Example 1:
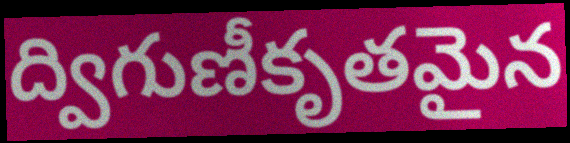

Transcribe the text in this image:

ద్విగుణీకృతమైన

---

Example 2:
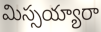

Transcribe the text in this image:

మిస్సయ్యారా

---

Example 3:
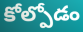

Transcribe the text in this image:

కోల్పోడం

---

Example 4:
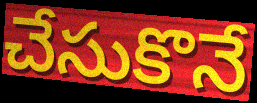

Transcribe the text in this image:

చేసుకొనే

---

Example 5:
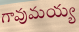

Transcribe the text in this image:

గావుమయ్య